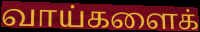
வாய்களைக்